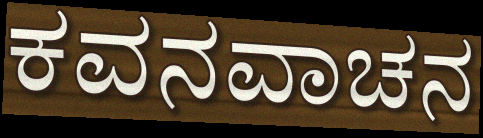
ಕವನವಾಚನ